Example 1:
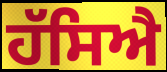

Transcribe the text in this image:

ਹੱਸਿਐ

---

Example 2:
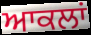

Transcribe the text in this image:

ਆਕਲਾਂ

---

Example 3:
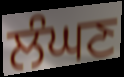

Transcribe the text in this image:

ਲੰਘਣ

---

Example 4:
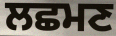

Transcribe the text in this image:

ਲਛਮਣ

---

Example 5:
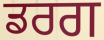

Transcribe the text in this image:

ਡਰਗ